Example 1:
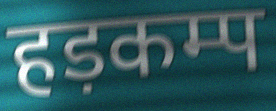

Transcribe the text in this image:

हड़कम्प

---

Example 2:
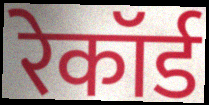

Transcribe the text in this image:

रेकॉर्ड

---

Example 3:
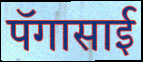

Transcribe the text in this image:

पॅगासाई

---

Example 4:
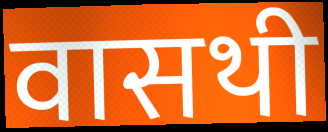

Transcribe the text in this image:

वासथी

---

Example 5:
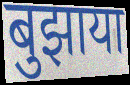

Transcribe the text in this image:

बुझाया